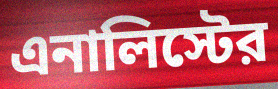
এনালিস্টের